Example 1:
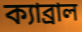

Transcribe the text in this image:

ক্যাব্রাল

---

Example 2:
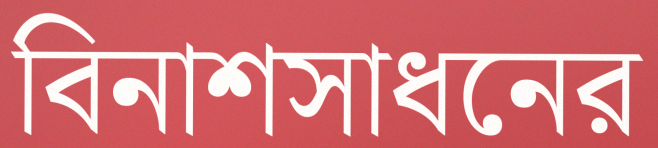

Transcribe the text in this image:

বিনাশসাধনের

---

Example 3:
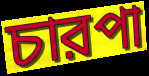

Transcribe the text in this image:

চারপা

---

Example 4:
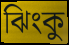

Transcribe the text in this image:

ঝিংকু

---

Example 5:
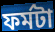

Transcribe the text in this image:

ফর্মটা